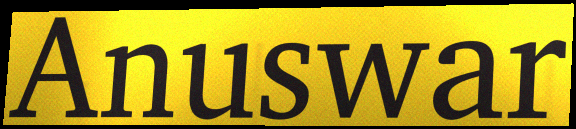
Anuswar